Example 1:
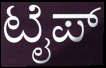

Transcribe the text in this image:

ಟೈಪ್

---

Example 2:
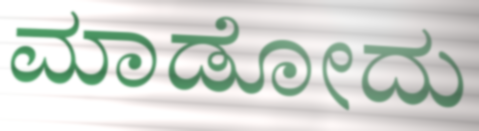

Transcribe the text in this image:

ಮಾಡೋದು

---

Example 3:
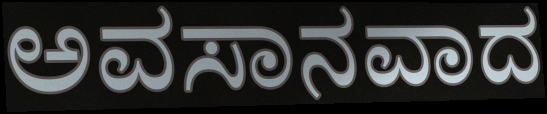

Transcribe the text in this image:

ಅವಸಾನವಾದ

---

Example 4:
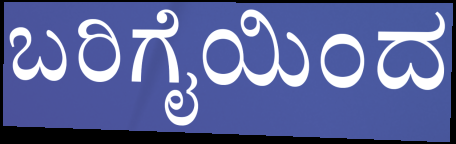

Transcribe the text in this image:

ಬರಿಗೈಯಿಂದ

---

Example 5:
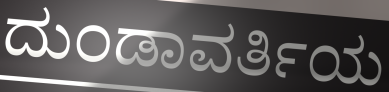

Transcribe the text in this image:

ದುಂಡಾವರ್ತಿಯ